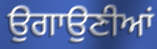
ਉਗਾਉਣੀਆਂ